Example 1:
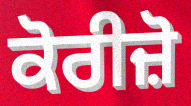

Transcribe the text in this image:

ਕੋਰੀਜ਼ੋ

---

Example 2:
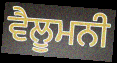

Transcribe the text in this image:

ਵੈਲੂਮਨੀ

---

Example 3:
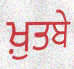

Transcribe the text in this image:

ਖ਼ੁਤਬੇ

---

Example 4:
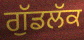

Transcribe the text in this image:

ਗੁੱਡਲੱਕ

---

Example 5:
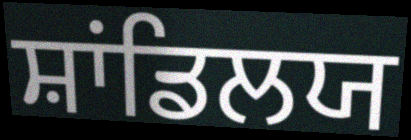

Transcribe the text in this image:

ਸ਼ਾਂਡਿਲਯ